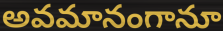
అవమానంగానూ